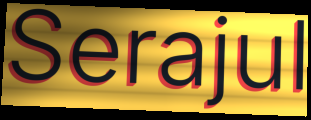
Serajul